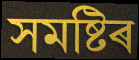
সমষ্টিৰ